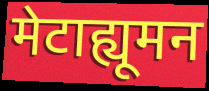
मेटाह्यूमन